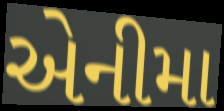
એનીમા